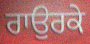
ਰਾਉਰਕੇ